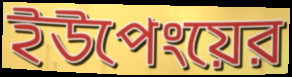
ইউপেংয়ের